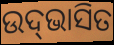
ଉଦ୍‌ଭାସିତ